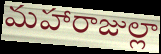
మహారాజుల్లా